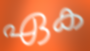
ഏക